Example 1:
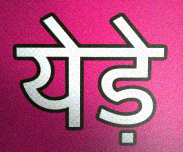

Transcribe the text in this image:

येड़े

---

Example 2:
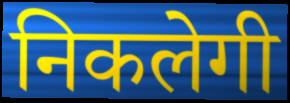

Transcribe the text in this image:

निकलेगी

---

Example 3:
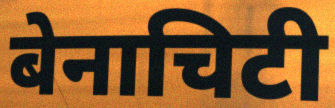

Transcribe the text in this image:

बेनाचिटी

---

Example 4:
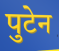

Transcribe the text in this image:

पुटेन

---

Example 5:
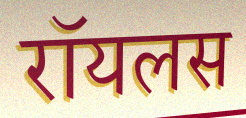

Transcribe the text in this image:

रॉयलस